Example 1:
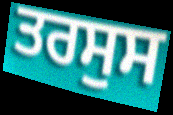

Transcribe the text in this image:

ਤਰਸੁਸ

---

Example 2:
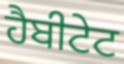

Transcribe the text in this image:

ਹੈਬੀਟੇਟ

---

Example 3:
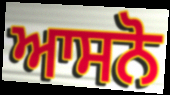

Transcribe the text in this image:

ਆਸਨੋ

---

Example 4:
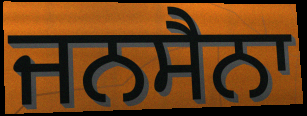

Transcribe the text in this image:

ਜਨਸੈਨਾ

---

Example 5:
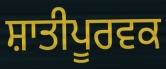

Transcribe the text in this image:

ਸ਼ਾਤੀਪੂਰਵਕ